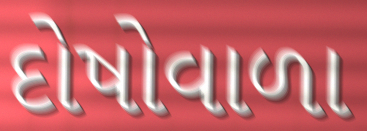
દોષોવાળા